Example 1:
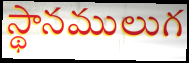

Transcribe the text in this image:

స్థానములుగ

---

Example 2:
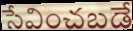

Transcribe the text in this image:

సేవించబడే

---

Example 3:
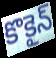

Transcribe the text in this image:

కొకైన్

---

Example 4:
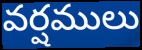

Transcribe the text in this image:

వర్షములు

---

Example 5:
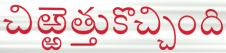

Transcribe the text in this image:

చిఱ్ఱెత్తుకొచ్చింది